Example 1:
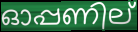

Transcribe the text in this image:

ഓപ്പണില്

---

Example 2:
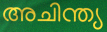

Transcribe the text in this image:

അചിന്ത്യ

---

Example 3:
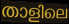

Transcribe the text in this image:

താളിലെ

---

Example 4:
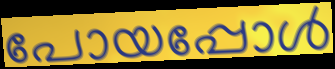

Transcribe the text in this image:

പോയപ്പോൾ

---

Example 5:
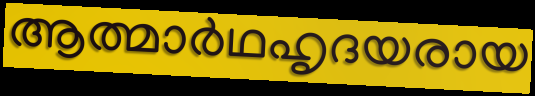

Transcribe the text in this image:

ആത്മാർഥഹൃദയരായ